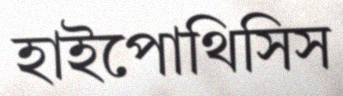
হাইপোথিসিস